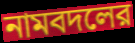
নামবদলের